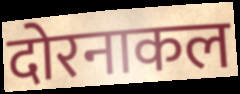
दोरनाकल